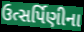
ઉત્સર્પિણીના